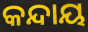
କନ୍ଦାୟ